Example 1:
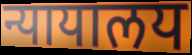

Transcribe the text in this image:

न्यायालय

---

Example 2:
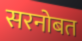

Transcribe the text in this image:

सरनोबत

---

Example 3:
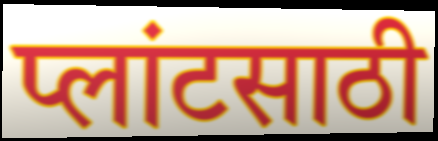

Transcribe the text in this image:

प्लांटसाठी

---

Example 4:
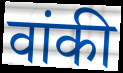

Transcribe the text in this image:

वांकी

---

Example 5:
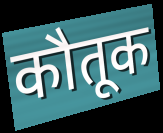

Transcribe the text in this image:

कौतूक